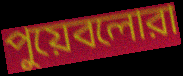
পুয়েবলোরা